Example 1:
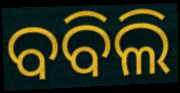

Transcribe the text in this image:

ବବିଲି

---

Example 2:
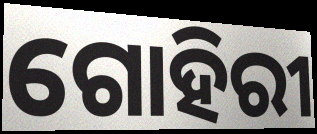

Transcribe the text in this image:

ଗୋହିରୀ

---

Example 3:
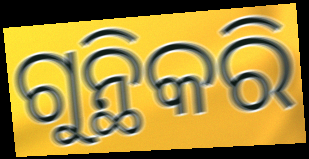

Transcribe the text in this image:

ଗୁନ୍ଥିକରି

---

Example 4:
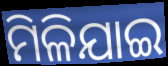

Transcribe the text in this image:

ମିଳିଯାଇ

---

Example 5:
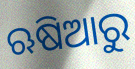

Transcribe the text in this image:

ଋଷିଆରୁ